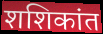
शशिकांत